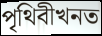
পৃথিবীখনত